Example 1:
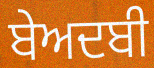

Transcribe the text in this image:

ਬੇਅਦਬੀ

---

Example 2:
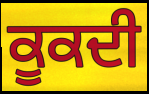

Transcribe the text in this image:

ਕੂਕਦੀ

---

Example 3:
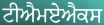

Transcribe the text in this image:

ਟੀਐਮਏਐਕਸ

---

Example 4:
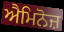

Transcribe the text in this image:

ਐਮਿਨੋਜ਼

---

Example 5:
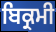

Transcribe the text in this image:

ਬਿਕ੍ਰਮੀ